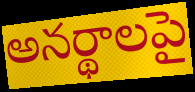
అనర్థాలపై